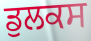
ਡੁਲਕਸ